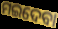
ମଇଦେବା